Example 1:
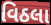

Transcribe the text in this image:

વિઠલા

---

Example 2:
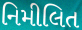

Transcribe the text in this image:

નિમીલિત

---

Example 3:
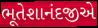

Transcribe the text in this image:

ભૂતેશાનંદજીએ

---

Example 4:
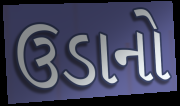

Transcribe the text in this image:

ઉડાનો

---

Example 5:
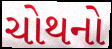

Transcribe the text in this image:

ચોથનો